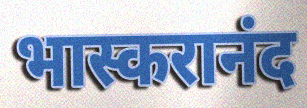
भास्करानंद